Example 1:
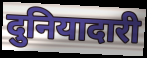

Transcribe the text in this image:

दुनियादारी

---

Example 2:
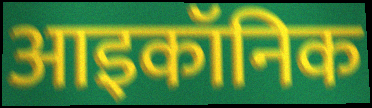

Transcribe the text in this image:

आइकॉनिक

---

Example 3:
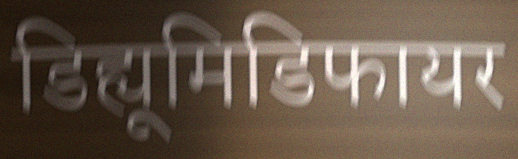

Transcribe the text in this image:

डिह्यूमिडिफायर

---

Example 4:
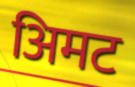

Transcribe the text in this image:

अिमट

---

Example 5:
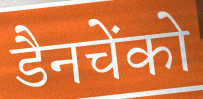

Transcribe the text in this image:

डैनचेंको